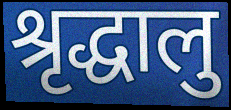
श्रृद्धालु